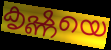
കൃഷ്ണയെ